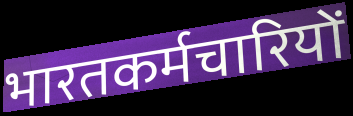
भारतकर्मचारियों